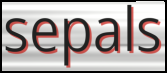
sepals